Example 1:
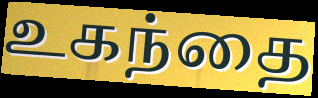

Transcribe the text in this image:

உகந்தை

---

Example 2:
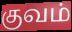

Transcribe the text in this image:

குவம்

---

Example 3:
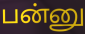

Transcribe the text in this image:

பன்னு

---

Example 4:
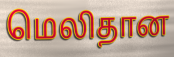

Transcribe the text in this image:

மெலிதான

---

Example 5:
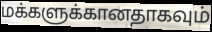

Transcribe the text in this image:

மக்களுக்கானதாகவும்